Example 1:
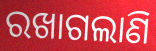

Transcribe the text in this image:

ରଖାଗଲାଣି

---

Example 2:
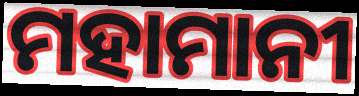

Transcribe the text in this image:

ମହାମାନୀ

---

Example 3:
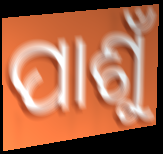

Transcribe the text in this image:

ପାଶୁଁ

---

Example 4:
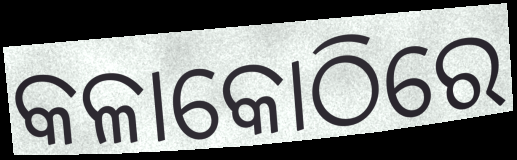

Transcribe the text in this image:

କଳାକୋଠିରେ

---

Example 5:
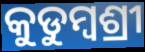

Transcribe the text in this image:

କୁଡୁମ୍ବଶ୍ରୀ